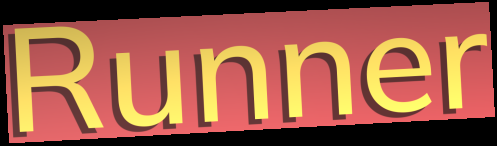
Runner